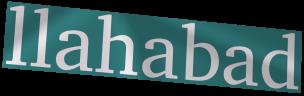
llahabad